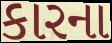
કારના